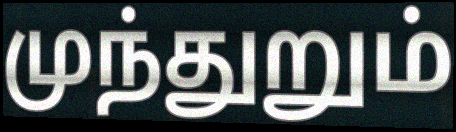
முந்துறும்